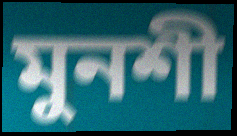
মুনশী